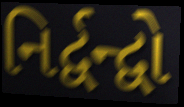
નિર્દ્વન્દ્વો